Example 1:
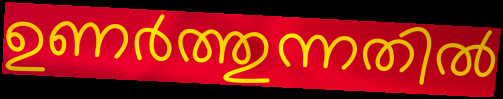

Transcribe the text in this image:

ഉണർത്തുന്നതിൽ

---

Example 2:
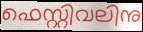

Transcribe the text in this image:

ഫെസ്റ്റിവലിനു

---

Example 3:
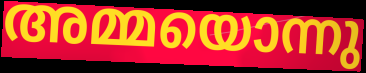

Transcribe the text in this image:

അമ്മയൊന്നു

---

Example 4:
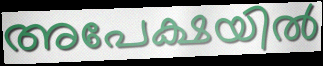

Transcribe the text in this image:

അപേക്ഷയിൽ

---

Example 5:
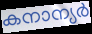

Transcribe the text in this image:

കനാന്യർ